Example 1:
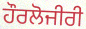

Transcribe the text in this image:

ਹੌਰਲੋਜੀਰੀ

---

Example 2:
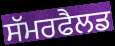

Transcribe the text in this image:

ਸੱਮਰਫੈਲਡ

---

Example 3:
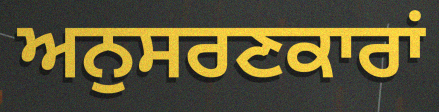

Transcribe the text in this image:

ਅਨੁਸਰਣਕਾਰਾਂ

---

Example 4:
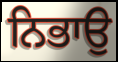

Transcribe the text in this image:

ਨਿਭਾਉ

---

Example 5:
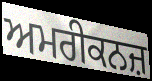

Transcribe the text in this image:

ਅਮਰੀਕਨਜ਼